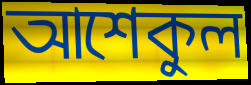
আশেকুল